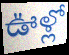
ఊళ్లో